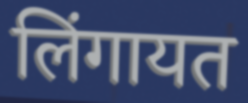
लिंगायत